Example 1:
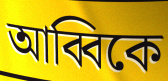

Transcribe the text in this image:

আব্বিকে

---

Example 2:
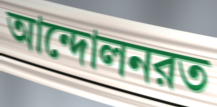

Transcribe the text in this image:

আন্দোলনরত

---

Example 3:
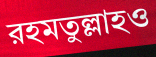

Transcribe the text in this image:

রহমতুল্লাহও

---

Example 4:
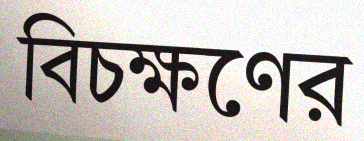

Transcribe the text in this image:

বিচক্ষণের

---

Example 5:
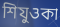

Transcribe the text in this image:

শিযুওকা